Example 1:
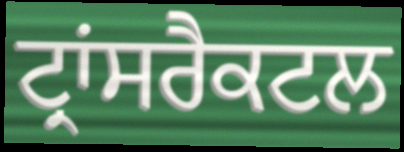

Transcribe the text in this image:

ਟ੍ਰਾਂਸਰੈਕਟਲ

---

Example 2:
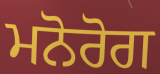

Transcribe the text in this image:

ਮਨੋਰੋਗ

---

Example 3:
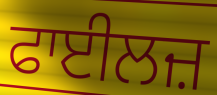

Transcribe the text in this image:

ਫਾਈਲਜ਼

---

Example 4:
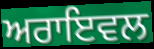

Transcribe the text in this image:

ਅਰਾਇਵਲ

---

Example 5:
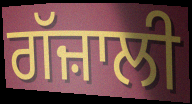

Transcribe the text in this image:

ਗੱਜ਼ਾਲੀ